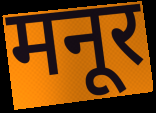
मनूर